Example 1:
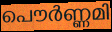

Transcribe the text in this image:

പൌർണ്ണമി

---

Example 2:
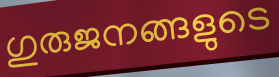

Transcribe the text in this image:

ഗുരുജനങ്ങളുടെ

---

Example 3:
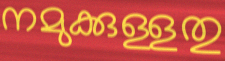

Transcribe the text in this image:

നമുക്കുള്ളതു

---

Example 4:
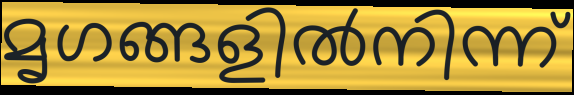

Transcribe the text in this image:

മൃഗങ്ങളിൽനിന്ന്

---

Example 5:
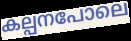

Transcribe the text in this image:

കല്പനപോലെ